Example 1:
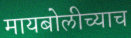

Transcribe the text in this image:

मायबोलीच्याच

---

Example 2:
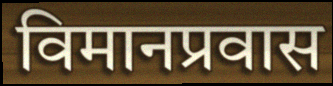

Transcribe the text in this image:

विमानप्रवास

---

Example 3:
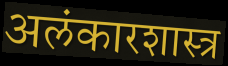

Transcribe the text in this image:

अलंकारशास्त्र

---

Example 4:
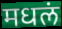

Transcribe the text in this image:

मधलं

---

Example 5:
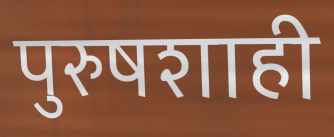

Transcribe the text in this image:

पुरुषशाही